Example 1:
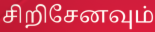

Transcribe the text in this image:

சிறிசேனவும்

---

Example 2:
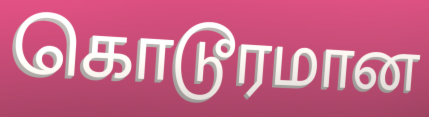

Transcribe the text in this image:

கொடூரமான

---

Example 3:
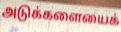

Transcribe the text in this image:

அடுக்களையைக்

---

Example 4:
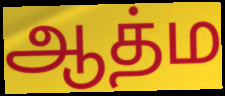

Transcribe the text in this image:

ஆத்ம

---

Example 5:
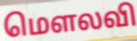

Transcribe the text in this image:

மௌலவி